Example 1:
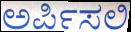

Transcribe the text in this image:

ಅರ್ಪಿಸಲಿ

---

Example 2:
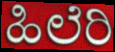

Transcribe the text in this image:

ಹಿಲೆರಿ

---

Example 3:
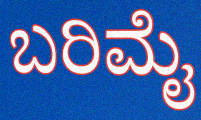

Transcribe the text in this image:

ಬರಿಮೈ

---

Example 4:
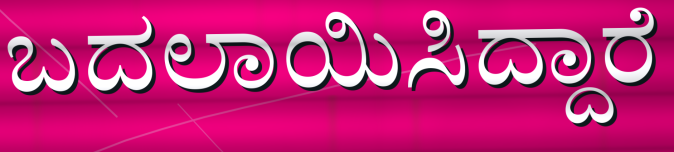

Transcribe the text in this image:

ಬದಲಾಯಿಸಿದ್ದಾರೆ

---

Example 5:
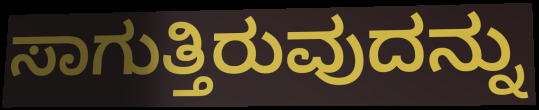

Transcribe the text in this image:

ಸಾಗುತ್ತಿರುವುದನ್ನು